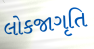
લોકજાગૃતિ